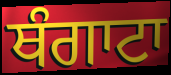
ਥੰਗਾਟਾ